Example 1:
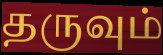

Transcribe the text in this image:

தருவும்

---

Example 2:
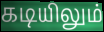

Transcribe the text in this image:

கடியிலும்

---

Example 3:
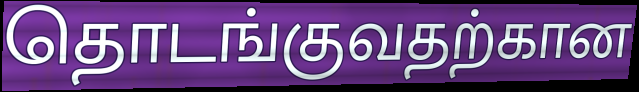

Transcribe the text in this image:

தொடங்குவதற்கான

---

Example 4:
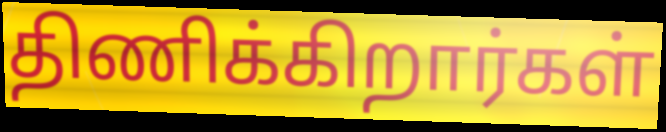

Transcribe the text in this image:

திணிக்கிறார்கள்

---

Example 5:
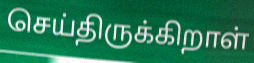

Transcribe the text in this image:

செய்திருக்கிறாள்